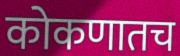
कोकणातच